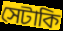
সেটাকি